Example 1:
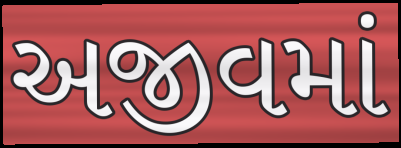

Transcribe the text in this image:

અજીવમાં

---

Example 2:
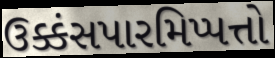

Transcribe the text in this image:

ઉક્કંસપારમિપ્પત્તો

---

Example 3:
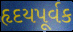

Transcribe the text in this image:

હૃદયપૂર્વક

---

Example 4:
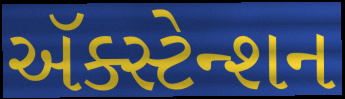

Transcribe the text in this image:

ઍક્સ્ટેન્શન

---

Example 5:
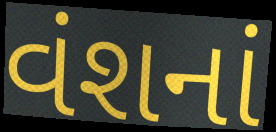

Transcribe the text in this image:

વંશનાં